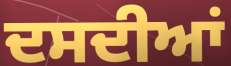
ਦਸਦੀਆਂ